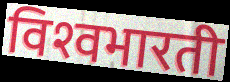
विश्वभारती